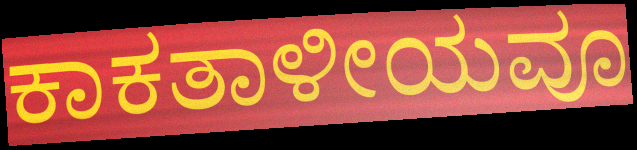
ಕಾಕತಾಳೀಯವೂ